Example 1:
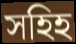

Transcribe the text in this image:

সহিহ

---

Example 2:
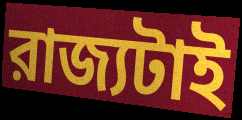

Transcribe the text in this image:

রাজ্যটাই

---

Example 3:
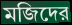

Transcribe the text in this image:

মজিদের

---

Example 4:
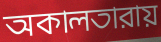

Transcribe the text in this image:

অকালতারায়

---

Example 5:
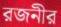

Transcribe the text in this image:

রজনীর